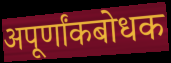
अपूर्णांकबोधक